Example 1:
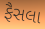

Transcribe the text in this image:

ફૈસલા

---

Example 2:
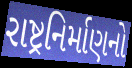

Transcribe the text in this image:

રાષ્ટ્રનિર્માણનો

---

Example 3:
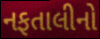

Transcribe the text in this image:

નફતાલીનો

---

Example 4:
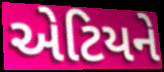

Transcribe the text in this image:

એટિયને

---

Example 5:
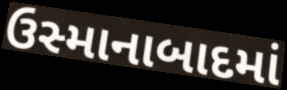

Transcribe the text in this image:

ઉસ્માનાબાદમાં